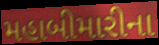
મહાબીમારીના